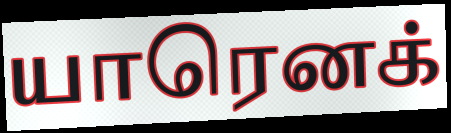
யாரெனக்